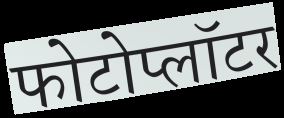
फोटोप्लॉटर